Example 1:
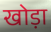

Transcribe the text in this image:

खोड़ा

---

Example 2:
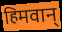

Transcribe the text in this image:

हिमवान्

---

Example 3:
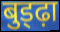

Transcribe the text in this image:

बुड्ढ़ा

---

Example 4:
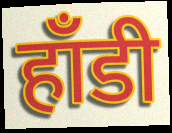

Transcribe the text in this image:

हाँडी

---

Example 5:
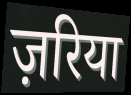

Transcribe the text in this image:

ज़रिया